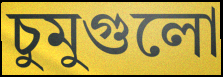
চুমুগুলো